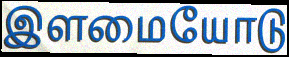
இளமையோடு